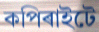
কপিৰাইটে